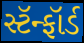
સ્ટૅન્ફૉર્ડ